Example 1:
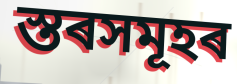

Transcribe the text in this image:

স্তৰসমূহৰ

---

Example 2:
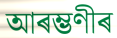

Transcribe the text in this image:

আৰম্ভণীৰ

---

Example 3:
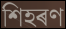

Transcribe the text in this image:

শিহৰণ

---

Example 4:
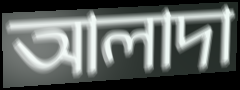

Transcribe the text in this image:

আলাদা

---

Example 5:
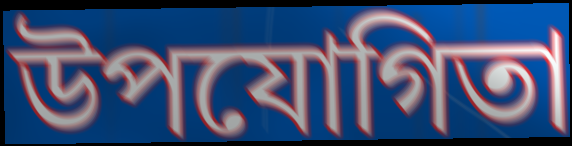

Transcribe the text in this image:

উপযোগিতা